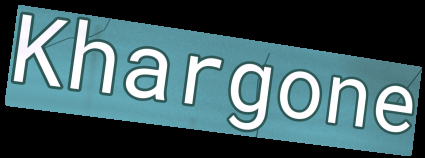
Khargone